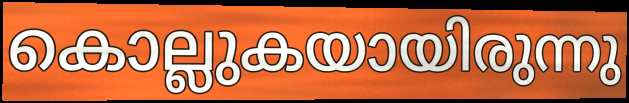
കൊല്ലുകയായിരുന്നു